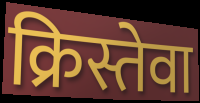
क्रिस्तेवा